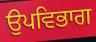
ਉਪਵਿਭਾਗ